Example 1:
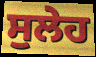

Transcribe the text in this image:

ਸੁਲੇਹ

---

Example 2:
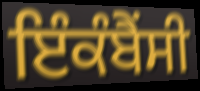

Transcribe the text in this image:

ਇੰਕੰਬੈਂਸੀ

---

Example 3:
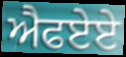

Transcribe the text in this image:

ਐਫਏਏ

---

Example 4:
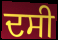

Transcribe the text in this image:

ਦਸੀ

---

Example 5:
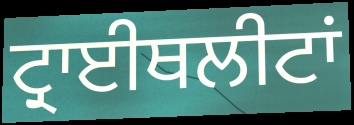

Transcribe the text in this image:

ਟ੍ਰਾਈਥਲੀਟਾਂ